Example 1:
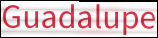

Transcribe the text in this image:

Guadalupe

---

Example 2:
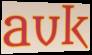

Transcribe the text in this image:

auk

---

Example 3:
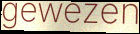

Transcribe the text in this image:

gewezen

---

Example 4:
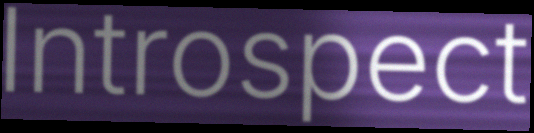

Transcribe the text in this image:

Introspect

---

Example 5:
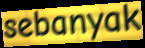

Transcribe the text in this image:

sebanyak